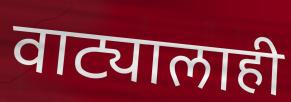
वाट्यालाही